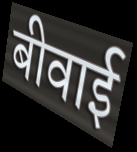
बीवाई